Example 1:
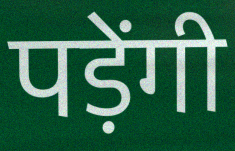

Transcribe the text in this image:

पड़ेंगी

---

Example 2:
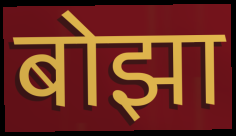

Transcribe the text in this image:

बोझा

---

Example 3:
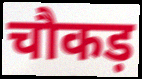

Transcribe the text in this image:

चौकड़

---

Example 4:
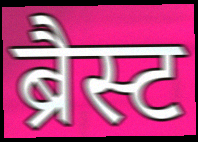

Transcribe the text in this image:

ब्रैस्ट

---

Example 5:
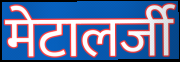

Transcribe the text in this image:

मेटालर्जी